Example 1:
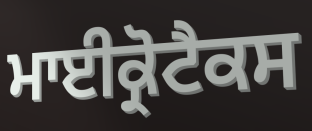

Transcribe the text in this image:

ਮਾਈਕ੍ਰੋਟੈਕਸ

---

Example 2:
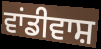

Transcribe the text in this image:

ਵਾਂਡੀਵਾਸ਼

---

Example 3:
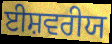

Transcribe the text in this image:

ਈਸ਼ਵਰੀਯ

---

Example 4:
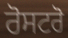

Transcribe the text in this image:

ਰੋਸਟਰੋ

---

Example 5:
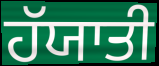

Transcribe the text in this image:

ਹੱਯਾਤੀ